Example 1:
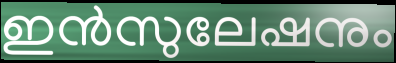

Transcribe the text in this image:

ഇൻസുലേഷനും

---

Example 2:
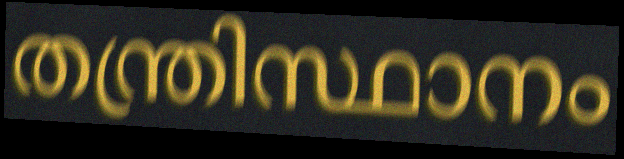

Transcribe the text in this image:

തന്ത്രിസ്ഥാനം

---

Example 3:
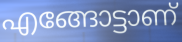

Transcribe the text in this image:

എങ്ങോട്ടാണ്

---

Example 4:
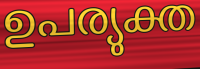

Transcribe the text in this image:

ഉപര്യുക്ത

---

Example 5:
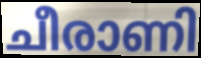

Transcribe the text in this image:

ചീരാണി